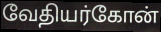
வேதியர்கோன்